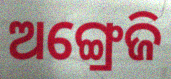
ଅଙ୍ଗ୍ରେଜି